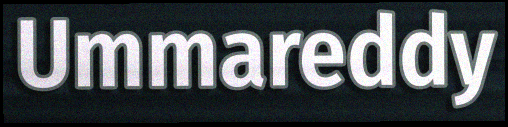
Ummareddy